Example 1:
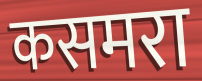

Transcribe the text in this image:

कसमरा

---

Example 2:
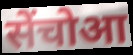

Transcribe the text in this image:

सेंचोआ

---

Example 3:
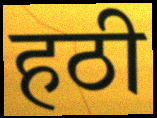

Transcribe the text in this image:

हठी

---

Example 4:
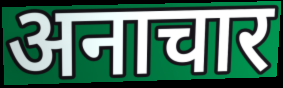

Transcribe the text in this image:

अनाचार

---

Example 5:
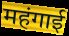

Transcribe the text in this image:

महंगाई